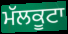
ਮੱਲਕੂਟਾ